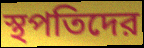
স্থপতিদের